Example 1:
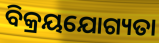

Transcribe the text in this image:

ବିକ୍ରୟଯୋଗ୍ୟତା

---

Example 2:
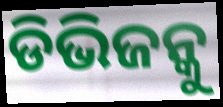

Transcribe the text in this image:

ଡିଭିଜନ୍କୁ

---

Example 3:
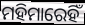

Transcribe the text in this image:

ମହିମାରେହିଁ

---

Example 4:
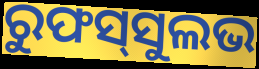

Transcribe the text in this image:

ରୁଫସ୍‌ସୁଲଭ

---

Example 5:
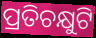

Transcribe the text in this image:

ପ୍ରତିଚକ୍ଷୁଟି